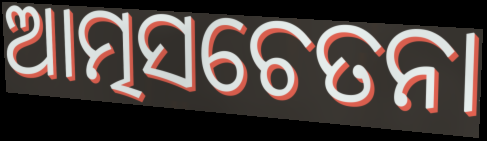
ଆତ୍ମସଚେତନା